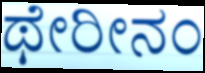
ಥೇರೀನಂ